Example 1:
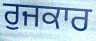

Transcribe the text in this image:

ਰੁਜਕਾਰ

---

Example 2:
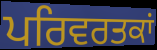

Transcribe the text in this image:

ਪਰਿਵਰਤਕਾਂ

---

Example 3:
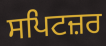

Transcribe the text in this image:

ਸਪਿਟਜ਼ਰ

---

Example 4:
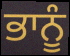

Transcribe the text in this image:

ਭਾਨੂੰ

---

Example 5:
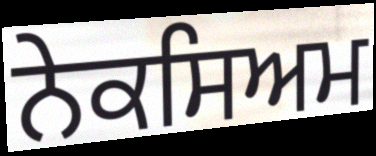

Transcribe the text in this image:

ਨੇਕਸਿਅਮ